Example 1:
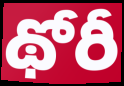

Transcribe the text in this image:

థోరీ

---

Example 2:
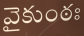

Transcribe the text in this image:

వైకుంఠః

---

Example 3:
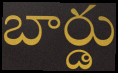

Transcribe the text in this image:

బార్డు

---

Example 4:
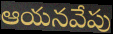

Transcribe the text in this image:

ఆయనవేపు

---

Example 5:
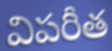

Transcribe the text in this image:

విపరీత